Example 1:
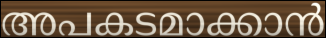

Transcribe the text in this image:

അപകടമാക്കാൻ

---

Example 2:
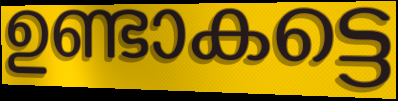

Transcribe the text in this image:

ഉണ്ടാകട്ടെ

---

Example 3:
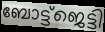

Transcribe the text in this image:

ബോട്ട്ജെട്ടി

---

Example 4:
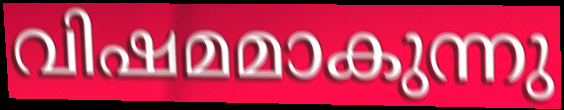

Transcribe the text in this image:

വിഷമമാകുന്നു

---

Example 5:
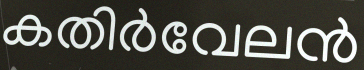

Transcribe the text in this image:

കതിർവേലൻ